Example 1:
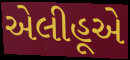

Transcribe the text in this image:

એલીહૂએ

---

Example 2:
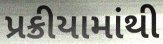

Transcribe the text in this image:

પ્રક્રીયામાંથી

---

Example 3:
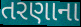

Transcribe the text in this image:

તરણાના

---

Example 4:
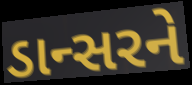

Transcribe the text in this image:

ડાન્સરને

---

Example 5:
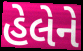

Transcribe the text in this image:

હેલેને